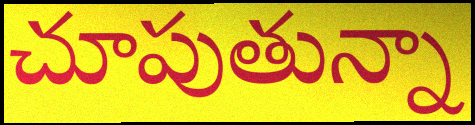
చూపుతున్నా